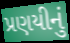
પ્રણયીનું